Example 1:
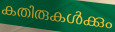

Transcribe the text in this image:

കതിരുകൾക്കും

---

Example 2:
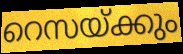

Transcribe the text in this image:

റെസയ്ക്കും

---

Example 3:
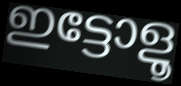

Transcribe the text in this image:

ഇട്ടോളൂ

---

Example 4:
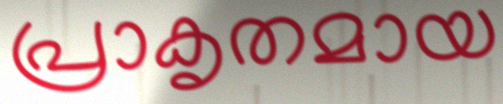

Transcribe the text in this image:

പ്രാകൃതമായ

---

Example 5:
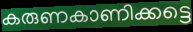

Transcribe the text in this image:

കരുണകാണിക്കട്ടെ